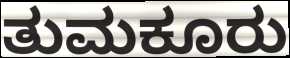
ತುಮಕೂರು